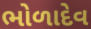
ભોળાદેવ